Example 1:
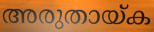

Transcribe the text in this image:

അരുതായ്ക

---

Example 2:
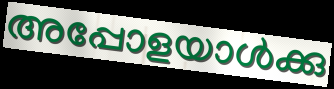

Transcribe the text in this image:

അപ്പോളയാൾക്കു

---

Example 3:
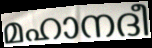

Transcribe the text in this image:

മഹാനദീ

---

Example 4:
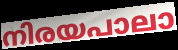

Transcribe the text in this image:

നിരയപാലാ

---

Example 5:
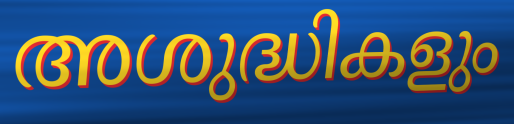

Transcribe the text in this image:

അശുദ്ധികളും